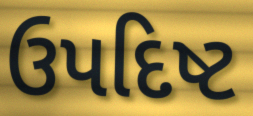
ઉપદિષ્ટ